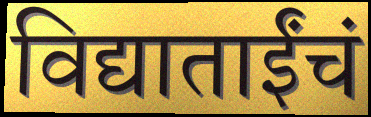
विद्याताईंचं